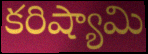
కరిష్యామి